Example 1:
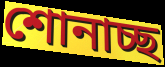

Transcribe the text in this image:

শোনাচ্ছ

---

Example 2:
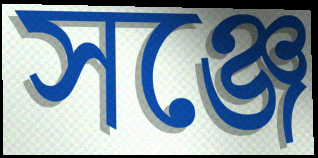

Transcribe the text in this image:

সঞ্জে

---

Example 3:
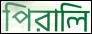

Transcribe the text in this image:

পিরালি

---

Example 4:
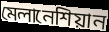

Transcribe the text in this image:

মেলানেশিয়ান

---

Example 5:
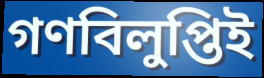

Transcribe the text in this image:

গণবিলুপ্তিই